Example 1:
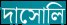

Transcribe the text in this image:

দাসোলি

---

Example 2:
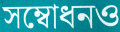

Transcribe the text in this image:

সম্বোধনও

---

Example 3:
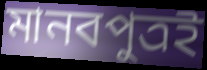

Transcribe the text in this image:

মানবপুত্রই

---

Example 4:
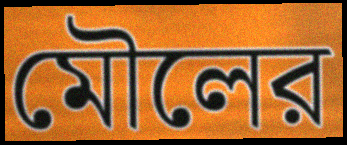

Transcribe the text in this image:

মৌলের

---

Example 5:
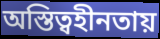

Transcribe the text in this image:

অস্তিত্বহীনতায়